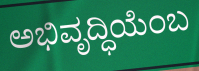
ಅಭಿವೃದ್ಧಿಯೆಂಬ